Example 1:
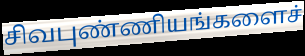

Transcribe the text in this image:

சிவபுண்ணியங்களைச்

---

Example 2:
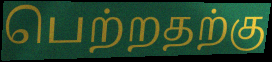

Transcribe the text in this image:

பெற்றதற்கு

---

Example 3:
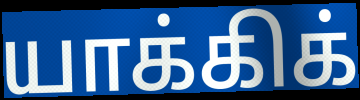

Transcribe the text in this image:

யாக்கிக்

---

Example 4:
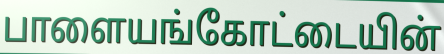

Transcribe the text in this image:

பாளையங்கோட்டையின்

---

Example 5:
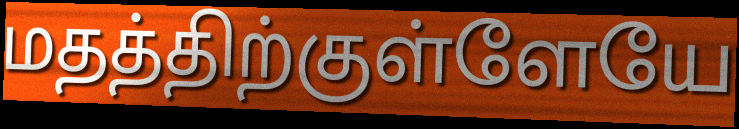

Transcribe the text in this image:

மதத்திற்குள்ளேயே